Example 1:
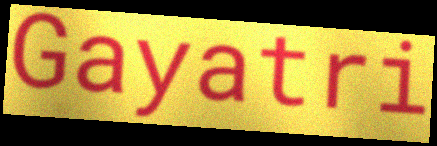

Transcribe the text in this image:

Gayatri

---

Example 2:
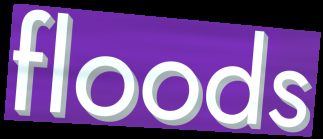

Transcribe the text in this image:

floods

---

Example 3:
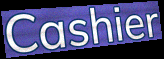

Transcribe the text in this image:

Cashier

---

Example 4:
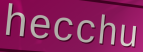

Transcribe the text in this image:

hecchu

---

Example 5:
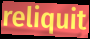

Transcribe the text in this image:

reliquit